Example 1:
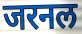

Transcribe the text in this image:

जरनल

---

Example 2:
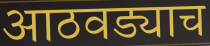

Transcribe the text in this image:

आठवड्याच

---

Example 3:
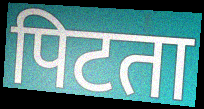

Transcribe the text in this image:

पिटता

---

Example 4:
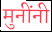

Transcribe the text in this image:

मुनींनी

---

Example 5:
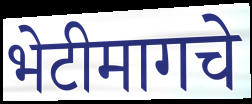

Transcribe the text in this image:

भेटीमागचे